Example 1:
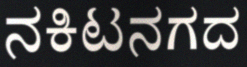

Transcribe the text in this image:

ನಕಿಟನಗದ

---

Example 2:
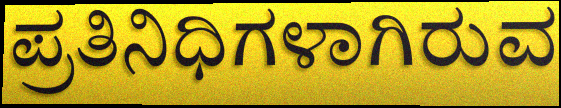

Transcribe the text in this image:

ಪ್ರತಿನಿಧಿಗಳಾಗಿರುವ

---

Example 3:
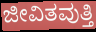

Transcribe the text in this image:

ಜೀವಿತವುತ್ತಿ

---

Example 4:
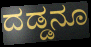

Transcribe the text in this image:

ದಡ್ಡನೂ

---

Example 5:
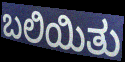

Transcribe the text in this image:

ಬಲಿಯಿತು